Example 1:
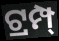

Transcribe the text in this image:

ଟ୍ରମ୍ପ୍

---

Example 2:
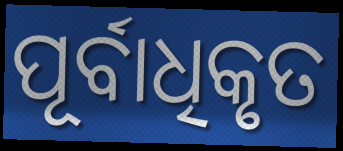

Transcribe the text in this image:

ପୂର୍ବାଧିକୃତ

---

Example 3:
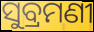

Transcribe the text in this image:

ସୁବ୍ରମଣୀ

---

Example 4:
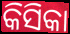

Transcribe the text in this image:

କିସିକା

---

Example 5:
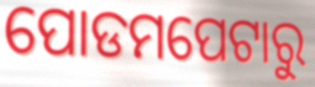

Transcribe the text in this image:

ପୋଡମପେଟାରୁ